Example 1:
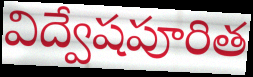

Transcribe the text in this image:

విద్వేషపూరిత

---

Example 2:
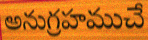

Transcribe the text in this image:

అనుగ్రహముచే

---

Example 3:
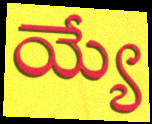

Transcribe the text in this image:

య్యే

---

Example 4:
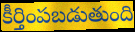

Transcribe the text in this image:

కీర్తింపబడుతుంది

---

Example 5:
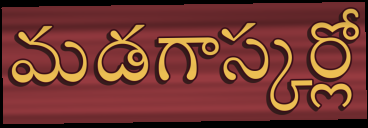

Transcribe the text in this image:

మడగాస్కర్లో